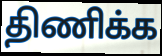
திணிக்க